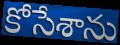
కోసేశాను